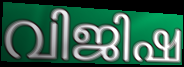
വിജിഷ